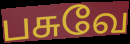
பசுவே